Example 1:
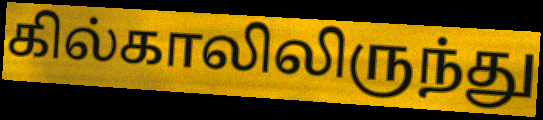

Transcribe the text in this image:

கில்காலிலிருந்து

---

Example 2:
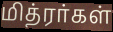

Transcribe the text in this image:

மித்ரர்கள்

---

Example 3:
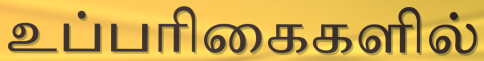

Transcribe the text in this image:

உப்பரிகைகளில்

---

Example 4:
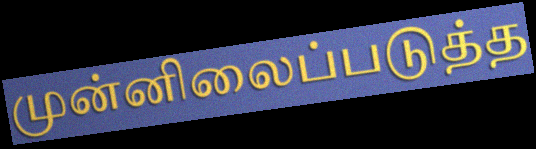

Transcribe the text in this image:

முன்னிலைப்படுத்த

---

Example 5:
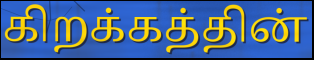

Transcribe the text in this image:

கிறக்கத்தின்